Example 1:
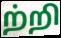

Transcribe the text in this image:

ற்றி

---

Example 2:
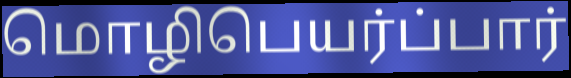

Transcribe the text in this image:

மொழிபெயர்ப்பார்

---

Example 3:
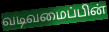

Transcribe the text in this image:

வடிவமைப்பின்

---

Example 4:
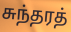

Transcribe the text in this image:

சுந்தரத்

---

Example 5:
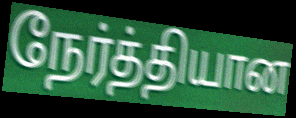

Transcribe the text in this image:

நேர்த்தியான